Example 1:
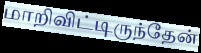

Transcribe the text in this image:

மாறிவிட்டிருந்தேன்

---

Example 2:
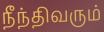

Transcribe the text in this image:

நீந்திவரும்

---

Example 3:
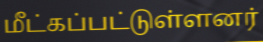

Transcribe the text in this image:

மீட்கப்பட்டுள்ளனர்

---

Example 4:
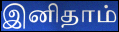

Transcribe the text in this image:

இனிதாம்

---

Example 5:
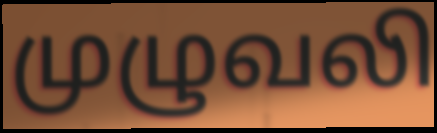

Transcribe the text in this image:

முழுவலி